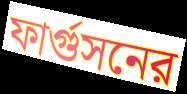
ফার্গুসনের